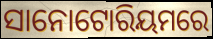
ସାନୋଟୋରିୟମରେ